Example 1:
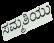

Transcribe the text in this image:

ಸಮ್ಮತಿಯು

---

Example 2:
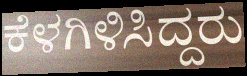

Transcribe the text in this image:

ಕೆಳಗಿಳಿಸಿದ್ದರು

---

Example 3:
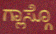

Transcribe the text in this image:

ಗ್ಲಾಸ್ಗೊ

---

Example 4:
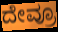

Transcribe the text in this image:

ದೇವ್ರೂ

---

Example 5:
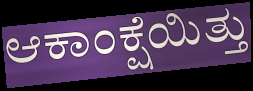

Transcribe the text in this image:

ಆಕಾಂಕ್ಷೆಯಿತ್ತು